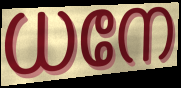
ധനേ